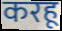
करहू